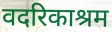
वदरिकाश्रम